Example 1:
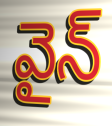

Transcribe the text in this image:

వైన్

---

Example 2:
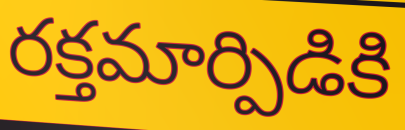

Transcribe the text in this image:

రక్తమార్పిడికి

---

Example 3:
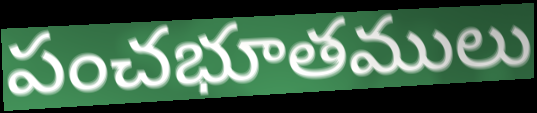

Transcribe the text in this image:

పంచభూతములు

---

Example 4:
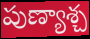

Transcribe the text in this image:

పుణ్యాశ్చ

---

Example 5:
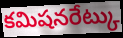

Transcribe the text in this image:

కమిషనరేట్కు